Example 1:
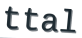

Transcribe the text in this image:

ttal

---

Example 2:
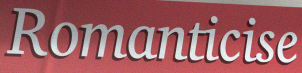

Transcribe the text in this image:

Romanticise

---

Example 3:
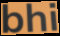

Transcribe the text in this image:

bhi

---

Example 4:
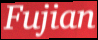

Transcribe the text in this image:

Fujian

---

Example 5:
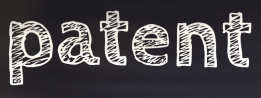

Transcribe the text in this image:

patent